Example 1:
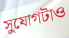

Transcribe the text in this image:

সুযোগটাও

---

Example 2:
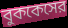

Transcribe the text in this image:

বুককেসের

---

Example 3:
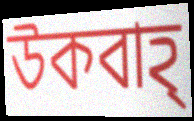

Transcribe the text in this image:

উকবাহ্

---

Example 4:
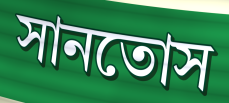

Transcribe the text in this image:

সানতোস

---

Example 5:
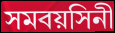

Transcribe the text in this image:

সমবয়সিনী